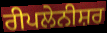
ਰੀਪਲੇਨੀਸ਼ਰ